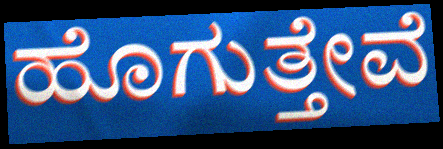
ಹೊಗುತ್ತೇವೆ